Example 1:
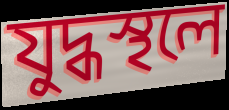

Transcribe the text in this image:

যুদ্ধস্থলে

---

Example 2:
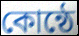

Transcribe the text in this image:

কোন্ঠে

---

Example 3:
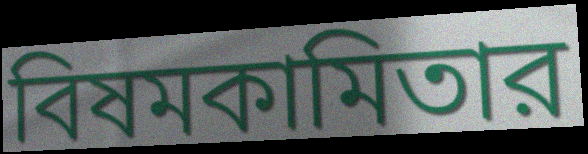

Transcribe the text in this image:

বিষমকামিতার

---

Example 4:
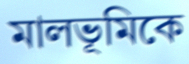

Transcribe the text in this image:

মালভূমিকে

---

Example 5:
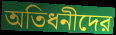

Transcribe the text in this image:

অতিধনীদের